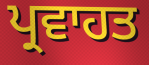
ਪ੍ਰਵਾਹਤ